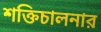
শক্তিচালনার